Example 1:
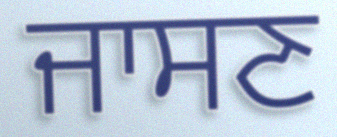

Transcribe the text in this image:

ਜਾਸਣ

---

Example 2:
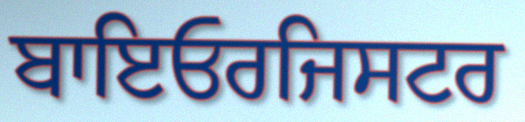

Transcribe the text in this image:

ਬਾਇਓਰਜਿਸਟਰ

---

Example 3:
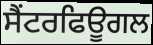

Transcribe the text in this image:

ਸੈਂਟਰਫਿਊਗਲ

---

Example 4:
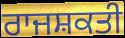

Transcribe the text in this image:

ਰਾਜਸ਼ਕਤੀ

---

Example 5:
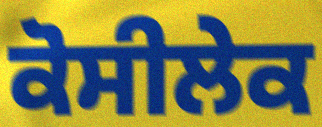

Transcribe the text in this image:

ਕੋਸੀਲੇਕ